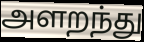
அளறந்து